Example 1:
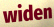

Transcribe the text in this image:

widen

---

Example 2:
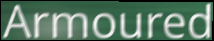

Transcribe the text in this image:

Armoured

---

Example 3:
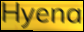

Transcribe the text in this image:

Hyena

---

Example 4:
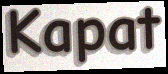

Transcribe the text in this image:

Kapat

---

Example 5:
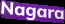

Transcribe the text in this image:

Nagara